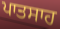
ਪਾਤਸਾਹ